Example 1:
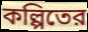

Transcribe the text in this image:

কল্পিতের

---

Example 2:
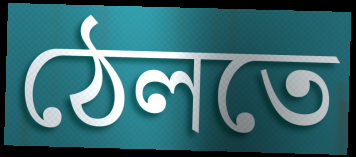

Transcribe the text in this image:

ঠেলতে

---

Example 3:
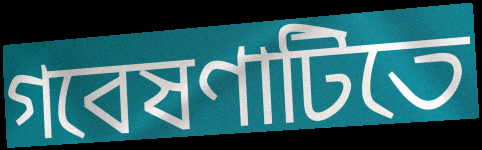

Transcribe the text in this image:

গবেষণাটিতে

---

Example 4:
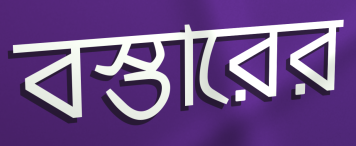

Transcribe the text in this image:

বস্তারের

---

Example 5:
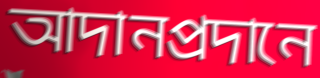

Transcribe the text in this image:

আদানপ্রদানে